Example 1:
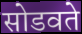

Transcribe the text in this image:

सोडवते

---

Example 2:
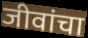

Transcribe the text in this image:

जीवांचा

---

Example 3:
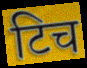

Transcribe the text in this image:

टिच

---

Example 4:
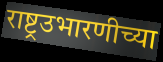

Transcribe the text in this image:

राष्ट्रउभारणीच्या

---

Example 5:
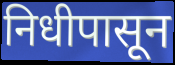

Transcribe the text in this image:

निधीपासून